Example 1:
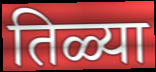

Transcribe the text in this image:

तिळ्या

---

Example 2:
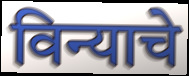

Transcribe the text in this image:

विन्याचे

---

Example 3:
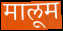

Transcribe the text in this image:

मालूम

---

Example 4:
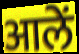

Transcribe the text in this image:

आलें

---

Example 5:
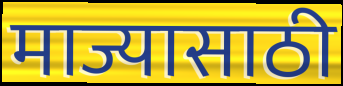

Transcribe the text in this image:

माज्यासाठी